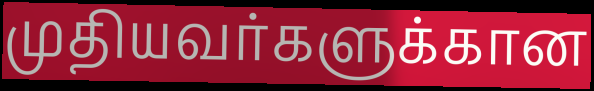
முதியவர்களுக்கான